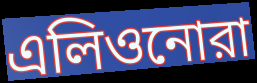
এলিওনোরা